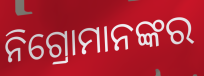
ନିଗ୍ରୋମାନଙ୍କର